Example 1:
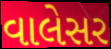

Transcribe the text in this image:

વાલેસર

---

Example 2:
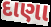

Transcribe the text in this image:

દાણા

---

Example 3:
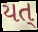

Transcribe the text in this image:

યત્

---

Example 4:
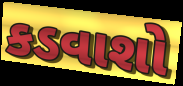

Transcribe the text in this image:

કડવાશો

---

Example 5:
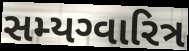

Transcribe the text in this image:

સમ્યગ્વારિત્ર